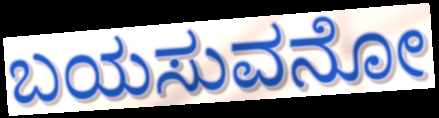
ಬಯಸುವನೋ